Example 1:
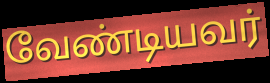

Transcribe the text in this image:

வேண்டியவர்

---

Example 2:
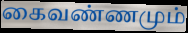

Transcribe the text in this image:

கைவண்ணமும்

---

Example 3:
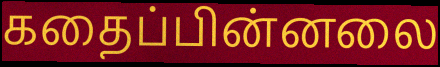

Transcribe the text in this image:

கதைப்பின்னலை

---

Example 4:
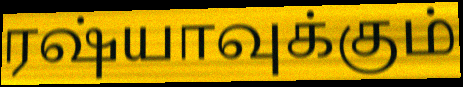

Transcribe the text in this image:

ரஷ்யாவுக்கும்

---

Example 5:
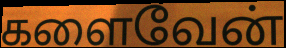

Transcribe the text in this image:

களைவேன்